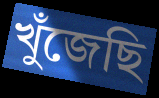
খুঁজেছি